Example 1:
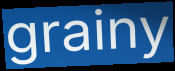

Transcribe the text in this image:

grainy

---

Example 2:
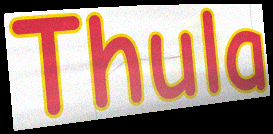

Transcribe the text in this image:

Thula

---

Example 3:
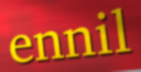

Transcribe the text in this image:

ennil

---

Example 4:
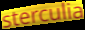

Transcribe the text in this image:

sterculia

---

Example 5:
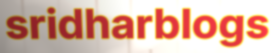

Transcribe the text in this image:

sridharblogs